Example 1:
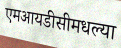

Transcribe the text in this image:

एमआयडीसीमधल्या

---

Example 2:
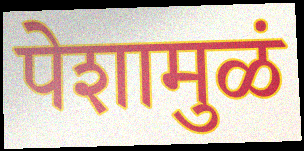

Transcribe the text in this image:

पेशामुळं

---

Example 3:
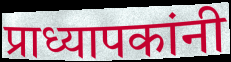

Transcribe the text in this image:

प्राध्यापकांनी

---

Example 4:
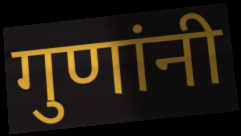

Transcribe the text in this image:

गुणांनी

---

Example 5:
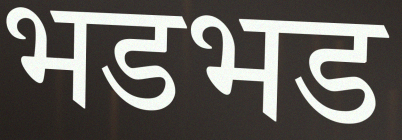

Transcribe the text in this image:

भडभड